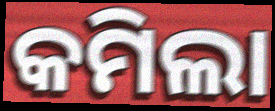
କମିଲା